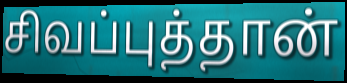
சிவப்புத்தான்